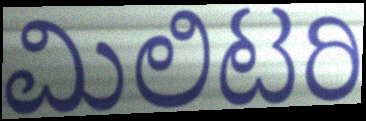
ಮಿಲಿಟರಿ